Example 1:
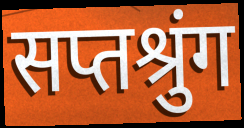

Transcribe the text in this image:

सप्तश्रुंग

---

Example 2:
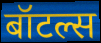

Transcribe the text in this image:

बॉटल्स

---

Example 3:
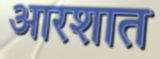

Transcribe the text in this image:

आरशात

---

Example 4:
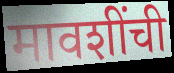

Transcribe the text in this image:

मावशींची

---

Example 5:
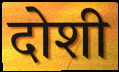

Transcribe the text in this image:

दोशी